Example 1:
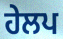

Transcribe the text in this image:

ਹੇਲਪ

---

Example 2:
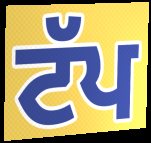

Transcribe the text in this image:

ਟੱਪ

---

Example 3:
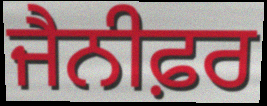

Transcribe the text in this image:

ਜੈਨੀਫ਼ਰ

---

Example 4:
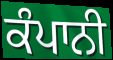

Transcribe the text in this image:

ਕੰਪਾਨੀ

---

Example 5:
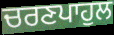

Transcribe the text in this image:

ਚਰਣਪਾਹੁਲ